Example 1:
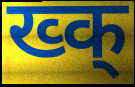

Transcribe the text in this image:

ख्क्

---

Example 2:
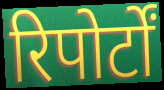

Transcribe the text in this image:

रिपोर्टों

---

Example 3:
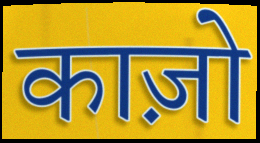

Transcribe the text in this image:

काज़ो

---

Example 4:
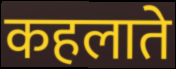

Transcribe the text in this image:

कहलाते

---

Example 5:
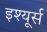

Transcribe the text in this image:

इश्यूर्स